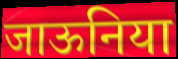
जाऊनिया